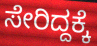
ಸೇರಿದ್ದಕ್ಕೆ